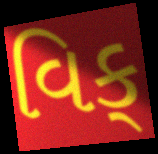
વિક્